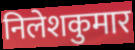
निलेशकुमार